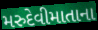
મરુદેવીમાતાના